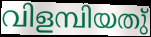
വിളമ്പിയതു്